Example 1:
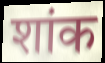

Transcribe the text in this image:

शांक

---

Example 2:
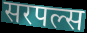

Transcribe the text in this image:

सरपल्स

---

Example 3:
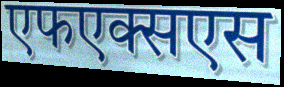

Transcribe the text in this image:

एफएक्सएस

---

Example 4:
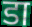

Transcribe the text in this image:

डा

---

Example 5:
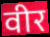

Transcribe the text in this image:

वीर